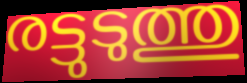
രട്ടുടുത്തു